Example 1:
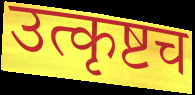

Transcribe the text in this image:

उत्कृष्टच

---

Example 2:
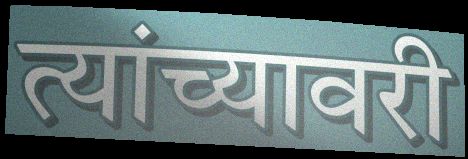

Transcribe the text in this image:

त्यांच्यावरी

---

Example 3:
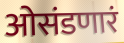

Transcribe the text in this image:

ओसंडणारं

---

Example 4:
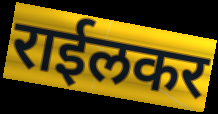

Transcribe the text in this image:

राईलकर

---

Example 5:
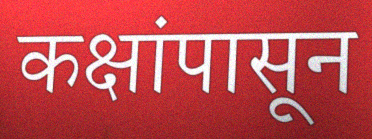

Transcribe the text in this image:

कक्षांपासून